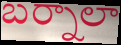
బర్నాలా